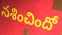
నశించిందో